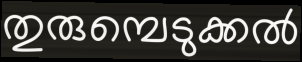
തുരുമ്പെടുക്കൽ